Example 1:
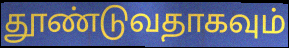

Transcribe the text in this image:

தூண்டுவதாகவும்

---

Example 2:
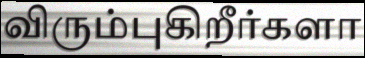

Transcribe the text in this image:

விரும்புகிறீர்களா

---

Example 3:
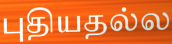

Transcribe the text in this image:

புதியதல்ல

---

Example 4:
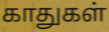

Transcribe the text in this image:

காதுகள்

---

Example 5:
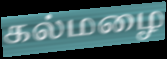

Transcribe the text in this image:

கல்மழை